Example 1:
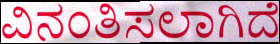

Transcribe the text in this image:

ವಿನಂತಿಸಲಾಗಿದೆ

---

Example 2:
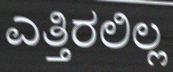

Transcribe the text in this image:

ಎತ್ತಿರಲಿಲ್ಲ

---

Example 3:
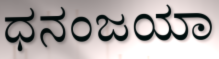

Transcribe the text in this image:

ಧನಂಜಯಾ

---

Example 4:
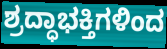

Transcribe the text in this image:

ಶ್ರದ್ಧಾಭಕ್ತಿಗಳಿಂದ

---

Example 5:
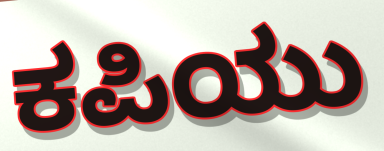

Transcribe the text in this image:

ಕಪಿಯು